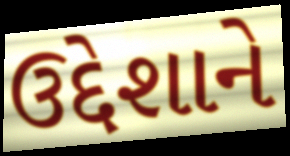
ઉદ્દેશાને